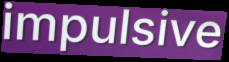
impulsive